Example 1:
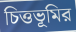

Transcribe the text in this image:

চিত্তভূমির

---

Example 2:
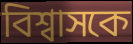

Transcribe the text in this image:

বিশ্বাসকে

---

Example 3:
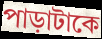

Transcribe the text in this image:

পাড়াটাকে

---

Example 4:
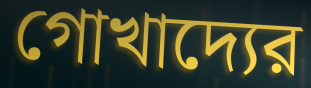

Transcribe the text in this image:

গোখাদ্যের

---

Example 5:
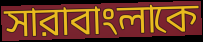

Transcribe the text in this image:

সারাবাংলাকে